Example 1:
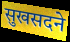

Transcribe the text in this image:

सुखसदने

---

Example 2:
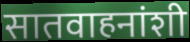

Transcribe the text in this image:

सातवाहनांशी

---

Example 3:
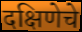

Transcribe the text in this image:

दक्षिणेचे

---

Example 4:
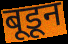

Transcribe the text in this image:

बूडून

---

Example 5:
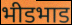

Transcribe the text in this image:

भीडभाड